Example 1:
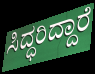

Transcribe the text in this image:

ಸಿದ್ಧರಿದ್ದಾರೆ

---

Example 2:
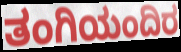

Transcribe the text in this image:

ತಂಗಿಯಂದಿರ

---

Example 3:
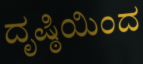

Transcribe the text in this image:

ದೃಷ್ಠಿಯಿಂದ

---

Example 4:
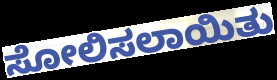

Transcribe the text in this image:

ಸೋಲಿಸಲಾಯಿತು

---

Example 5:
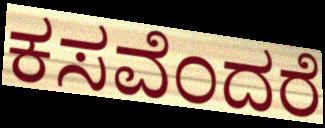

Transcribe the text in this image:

ಕಸವೆಂದರೆ